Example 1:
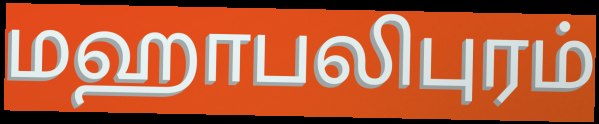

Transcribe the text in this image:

மஹாபலிபுரம்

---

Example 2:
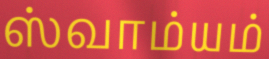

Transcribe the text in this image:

ஸ்வாம்யம்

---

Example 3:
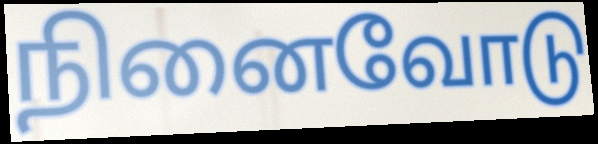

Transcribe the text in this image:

நினைவோடு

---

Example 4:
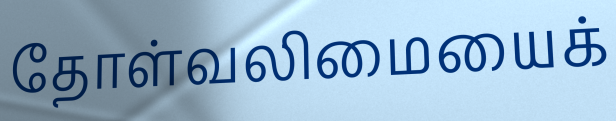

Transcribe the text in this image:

தோள்வலிமையைக்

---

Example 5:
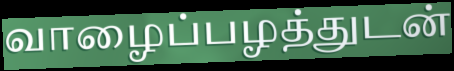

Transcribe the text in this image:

வாழைப்பழத்துடன்